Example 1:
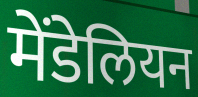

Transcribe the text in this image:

मेंडेलियन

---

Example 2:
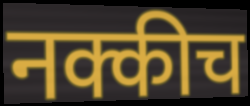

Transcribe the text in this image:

नक्कीच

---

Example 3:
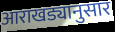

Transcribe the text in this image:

आराखड्यानुसार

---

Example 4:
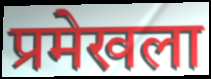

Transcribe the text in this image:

प्रमेखला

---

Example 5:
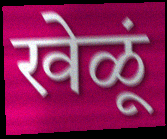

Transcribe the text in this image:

खेळूं